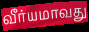
வீர்யமாவது